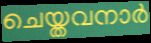
ചെയ്തവനാർ